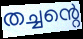
തച്ചന്റെ